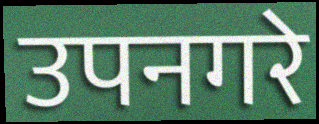
उपनगरे